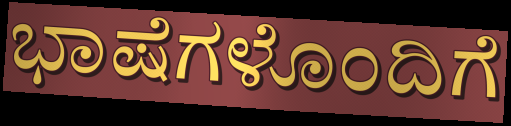
ಭಾಷೆಗಳೊಂದಿಗೆ